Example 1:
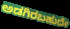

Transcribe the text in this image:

ಅಡಗಿರಬಹುದೇ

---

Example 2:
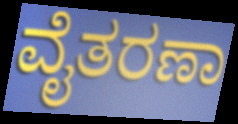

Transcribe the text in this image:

ವೈತರಣಾ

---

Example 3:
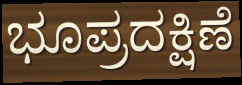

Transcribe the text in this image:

ಭೂಪ್ರದಕ್ಷಿಣೆ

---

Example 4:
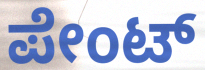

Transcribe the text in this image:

ಪೇಂಟ್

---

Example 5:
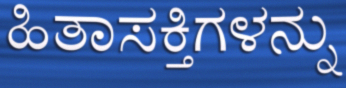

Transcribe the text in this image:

ಹಿತಾಸಕ್ತಿಗಳನ್ನು